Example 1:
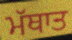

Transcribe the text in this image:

ਮੱਥਾਤ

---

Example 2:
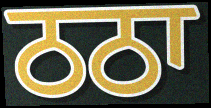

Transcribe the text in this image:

ਠਠਾ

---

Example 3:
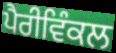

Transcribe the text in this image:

ਪੈਰੀਵਿੰਕਲ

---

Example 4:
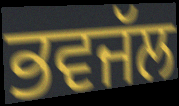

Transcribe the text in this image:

ਭਵਜੱਲ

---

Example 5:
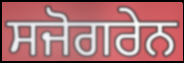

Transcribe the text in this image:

ਸਜੋਗਰੇਨ